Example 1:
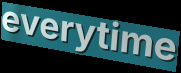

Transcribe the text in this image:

everytime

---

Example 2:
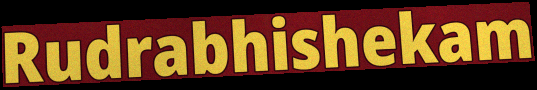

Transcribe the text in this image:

Rudrabhishekam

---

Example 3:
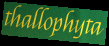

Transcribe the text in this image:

thallophyta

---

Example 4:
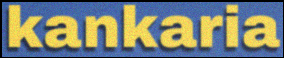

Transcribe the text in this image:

kankaria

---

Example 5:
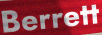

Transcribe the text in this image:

Berrett